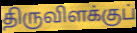
திருவிளக்குப்